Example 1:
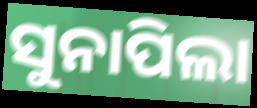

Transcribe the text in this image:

ସୁନାପିଲା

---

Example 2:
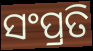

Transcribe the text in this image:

ସଂପ୍ରତି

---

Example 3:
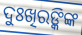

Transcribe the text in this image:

ଦୁଃଖିରଙ୍କିଙ୍କ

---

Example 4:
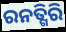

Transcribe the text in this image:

ରନତ୍ଗିରି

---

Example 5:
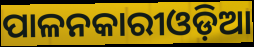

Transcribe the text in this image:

ପାଳନକାରୀଓଡ଼ିଆ